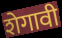
शेगावी